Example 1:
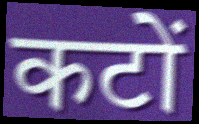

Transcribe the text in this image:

कटों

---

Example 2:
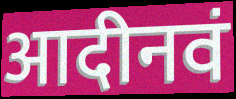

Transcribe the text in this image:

आदीनवं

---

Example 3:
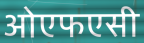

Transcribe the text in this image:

ओएफएसी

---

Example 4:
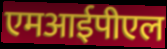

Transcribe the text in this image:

एमआईपीएल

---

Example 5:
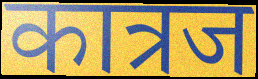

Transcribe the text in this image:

कात्रज